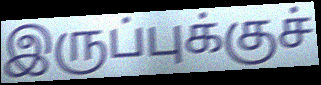
இருப்புக்குச்